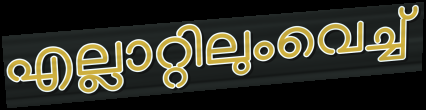
എല്ലാറ്റിലുംവെച്ച്